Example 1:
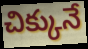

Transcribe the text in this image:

చిక్కునే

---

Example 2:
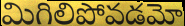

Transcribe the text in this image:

మిగిలిపోవడమో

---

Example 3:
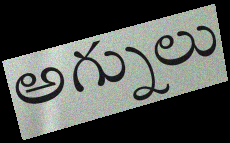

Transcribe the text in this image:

అగ్నులు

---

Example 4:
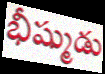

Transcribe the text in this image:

భీష్ముడు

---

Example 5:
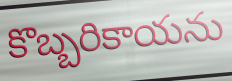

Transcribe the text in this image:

కొబ్బరికాయను